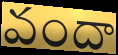
వందా